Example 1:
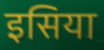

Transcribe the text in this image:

इसिया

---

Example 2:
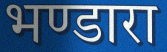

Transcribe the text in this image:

भण्डारा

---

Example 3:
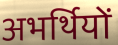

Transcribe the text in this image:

अभर्थियों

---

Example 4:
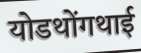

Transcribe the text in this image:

योडथोंगथाई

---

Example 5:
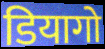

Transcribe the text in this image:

डियागो